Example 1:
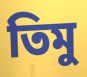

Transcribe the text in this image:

তিমু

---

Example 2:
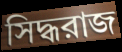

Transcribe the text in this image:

সিদ্ধরাজ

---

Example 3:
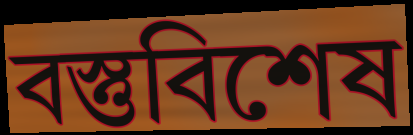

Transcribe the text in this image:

বস্তুবিশেষ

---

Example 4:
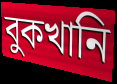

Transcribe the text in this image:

বুকখানি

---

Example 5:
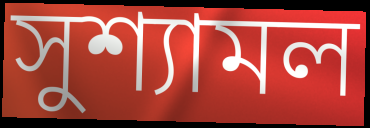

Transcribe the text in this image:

সুশ্যামল